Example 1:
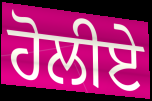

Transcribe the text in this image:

ਹੋਲੀਏ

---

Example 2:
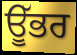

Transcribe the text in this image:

ਊੱਭਰ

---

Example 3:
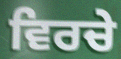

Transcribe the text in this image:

ਵਿਰਚੇ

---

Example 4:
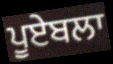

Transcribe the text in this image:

ਪੂਏਬਲਾ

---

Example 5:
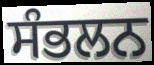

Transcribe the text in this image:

ਸੰਭਲਨ